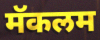
मॅकलम